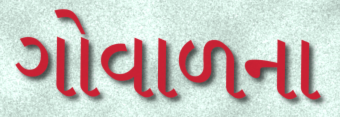
ગોવાળના